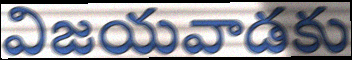
విజయవాడకు